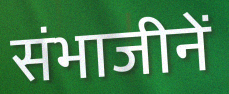
संभाजीनें